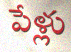
పేళ్లు